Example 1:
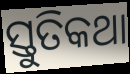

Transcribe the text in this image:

ସ୍ତୁତିକଥା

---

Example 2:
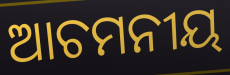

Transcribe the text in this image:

ଆଚମନୀୟ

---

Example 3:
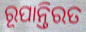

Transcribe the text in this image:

ରୂପାନ୍ତିରତ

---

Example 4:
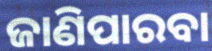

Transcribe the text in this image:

ଜାଣିପାରବା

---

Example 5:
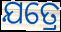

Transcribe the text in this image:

ଯତ୍ରେ